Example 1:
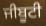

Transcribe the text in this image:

ਜੀਬੂਟੀ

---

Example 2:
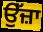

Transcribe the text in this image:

ਉੱਜ਼ਾ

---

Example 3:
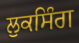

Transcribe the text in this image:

ਲੁਕਸਿੰਗ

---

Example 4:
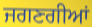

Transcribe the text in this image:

ਜਗਣਗੀਆਂ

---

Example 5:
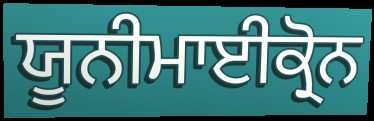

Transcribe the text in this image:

ਯੂਨੀਮਾਈਕ੍ਰੋਨ